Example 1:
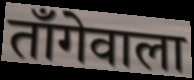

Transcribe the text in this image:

ताँगेवाला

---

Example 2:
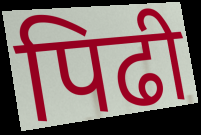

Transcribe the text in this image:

पिढी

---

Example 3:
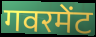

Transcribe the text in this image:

गवरमेंट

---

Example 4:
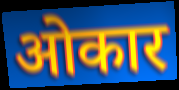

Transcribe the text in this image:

ओकार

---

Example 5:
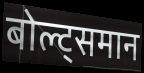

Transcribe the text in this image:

बोल्ट्समान